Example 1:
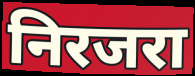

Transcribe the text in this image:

निरजरा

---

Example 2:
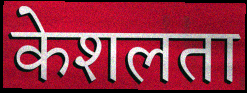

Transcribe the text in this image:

केशलता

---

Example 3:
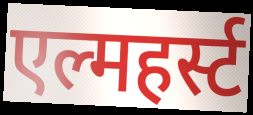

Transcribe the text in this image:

एल्महर्स्ट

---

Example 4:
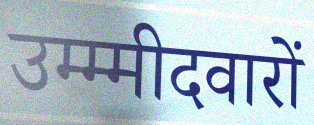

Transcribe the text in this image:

उम्म्मीदवारों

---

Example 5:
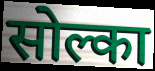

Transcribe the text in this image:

सोल्का